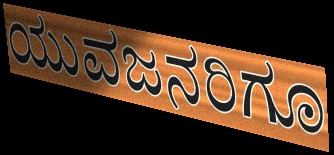
ಯುವಜನರಿಗೂ